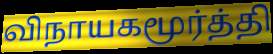
விநாயகமூர்த்தி